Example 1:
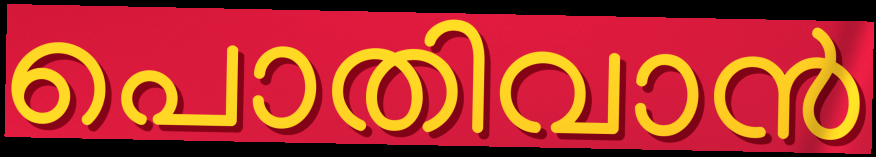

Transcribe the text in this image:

പൊതിവാൻ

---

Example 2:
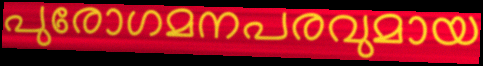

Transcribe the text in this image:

പുരോഗമനപരവുമായ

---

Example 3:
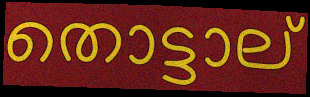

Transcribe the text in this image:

തൊട്ടാല്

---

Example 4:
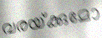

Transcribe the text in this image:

വരയ്‌ക്കുമോ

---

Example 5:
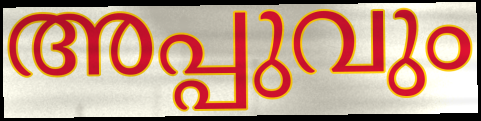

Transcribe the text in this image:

അപ്പുവും